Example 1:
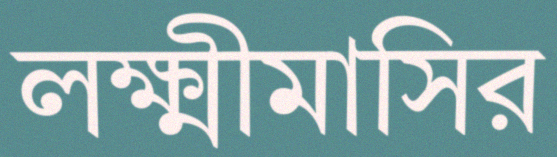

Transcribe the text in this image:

লক্ষ্মীমাসির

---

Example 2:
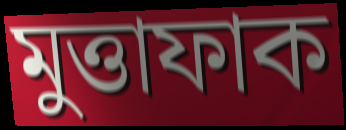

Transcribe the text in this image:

মুত্তাফাক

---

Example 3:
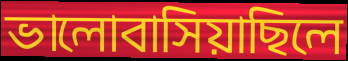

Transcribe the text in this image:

ভালোবাসিয়াছিলে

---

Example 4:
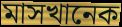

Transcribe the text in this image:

মাসখানেক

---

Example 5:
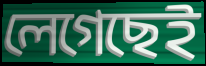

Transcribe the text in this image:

লেগেছেই